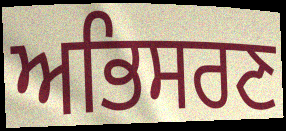
ਅਭਿਸਰਣ